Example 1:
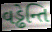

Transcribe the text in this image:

વડ્ઢેન્તિ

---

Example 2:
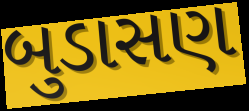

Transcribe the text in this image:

બુડાસણ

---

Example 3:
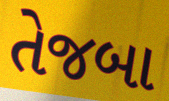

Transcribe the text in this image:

તેજબા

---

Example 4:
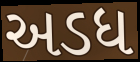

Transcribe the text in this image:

અડધ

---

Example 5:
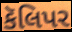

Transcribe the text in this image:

કૅલિપર